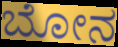
ಬೋನ